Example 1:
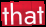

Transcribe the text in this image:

that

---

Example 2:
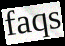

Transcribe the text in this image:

faqs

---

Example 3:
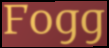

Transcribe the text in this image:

Fogg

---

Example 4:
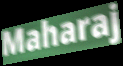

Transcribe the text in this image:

Maharaj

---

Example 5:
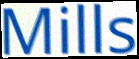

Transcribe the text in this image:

Mills